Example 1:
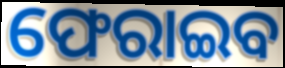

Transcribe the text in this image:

ଫେରାଇବ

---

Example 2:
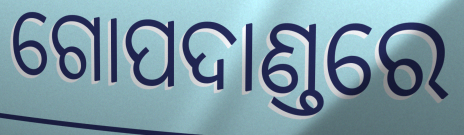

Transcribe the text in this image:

ଗୋପଦାଣ୍ଡରେ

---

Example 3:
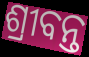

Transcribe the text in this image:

ଶ୍ରୀବନ୍ତ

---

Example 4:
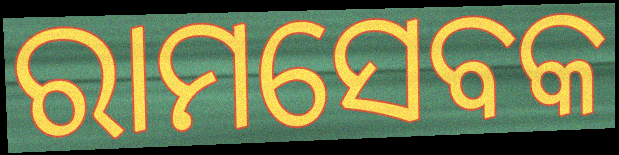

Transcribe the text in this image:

ରାମସେବକ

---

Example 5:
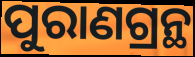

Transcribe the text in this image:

ପୁରାଣଗ୍ରନ୍ଥ